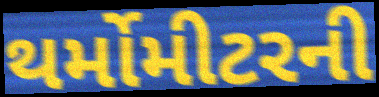
થર્મોમીટરની